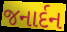
જનાર્દન